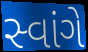
સ્વાંગે